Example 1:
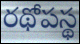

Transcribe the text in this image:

రథోపస్థ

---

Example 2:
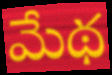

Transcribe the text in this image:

మేథ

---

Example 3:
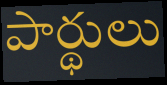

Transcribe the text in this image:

పార్థులు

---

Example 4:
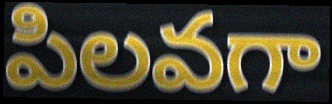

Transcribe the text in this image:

పిలవగా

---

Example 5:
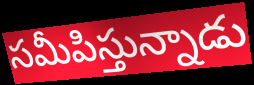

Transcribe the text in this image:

సమీపిస్తున్నాడు